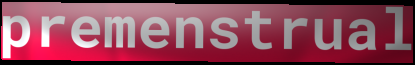
premenstrual